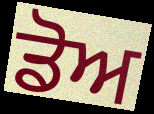
ਡੋਅ